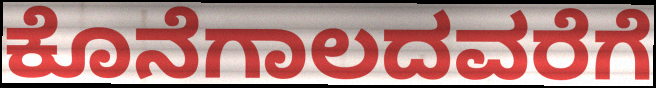
ಕೊನೆಗಾಲದವರೆಗೆ